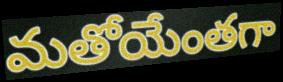
మతోయేంతగా